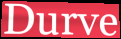
Durve